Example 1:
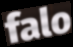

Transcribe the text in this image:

falo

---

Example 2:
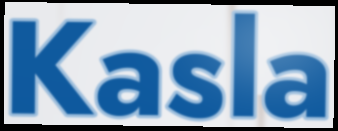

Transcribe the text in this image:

Kasla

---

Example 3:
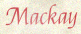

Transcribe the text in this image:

Mackay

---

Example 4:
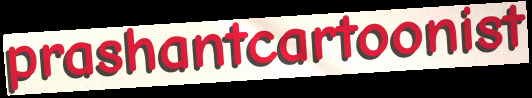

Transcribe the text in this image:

prashantcartoonist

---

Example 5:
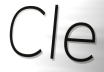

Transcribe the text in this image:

Cle